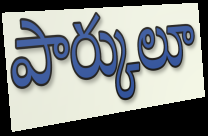
పార్కులూ